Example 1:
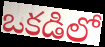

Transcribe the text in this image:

ఒకడిలో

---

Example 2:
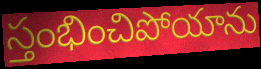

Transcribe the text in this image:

స్తంభించిపోయాను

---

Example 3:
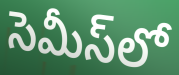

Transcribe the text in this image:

సెమీస్‌లో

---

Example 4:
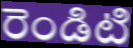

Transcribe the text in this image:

రెండిటి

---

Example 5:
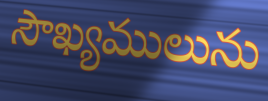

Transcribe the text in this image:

సౌఖ్యములును